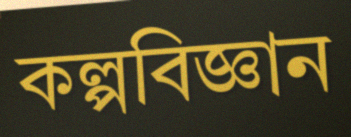
কল্পবিজ্ঞান